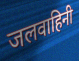
जलवाहिनी